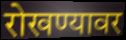
रोखण्यावर